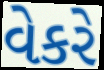
વેકરે